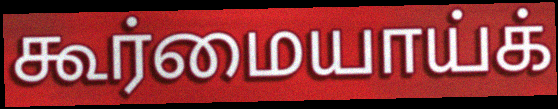
கூர்மையாய்க்